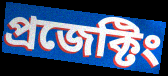
প্রজেক্টিং